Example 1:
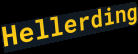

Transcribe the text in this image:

Hellerding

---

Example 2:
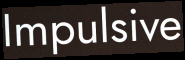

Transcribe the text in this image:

Impulsive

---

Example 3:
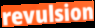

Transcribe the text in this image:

revulsion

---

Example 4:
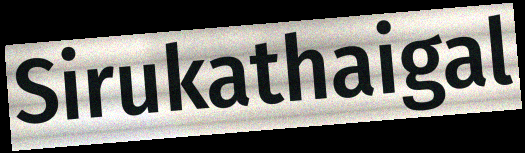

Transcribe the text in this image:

Sirukathaigal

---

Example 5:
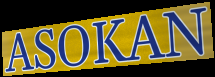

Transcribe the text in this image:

ASOKAN